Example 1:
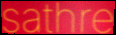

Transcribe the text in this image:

sathre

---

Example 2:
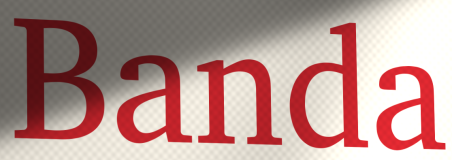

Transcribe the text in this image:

Banda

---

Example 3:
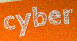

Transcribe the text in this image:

cyber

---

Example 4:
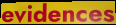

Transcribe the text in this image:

evidences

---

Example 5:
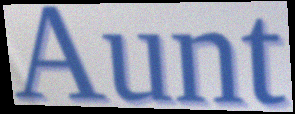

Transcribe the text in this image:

Aunt